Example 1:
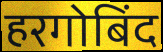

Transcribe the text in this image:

हरगोबिंद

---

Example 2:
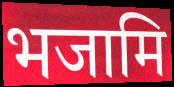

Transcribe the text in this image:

भजामि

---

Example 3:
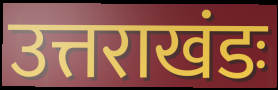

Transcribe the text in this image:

उत्तराखंडः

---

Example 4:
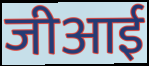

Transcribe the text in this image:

जीआई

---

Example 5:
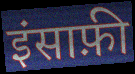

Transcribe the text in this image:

इंसाफ़ी